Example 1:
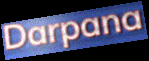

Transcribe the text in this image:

Darpana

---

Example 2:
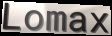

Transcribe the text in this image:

Lomax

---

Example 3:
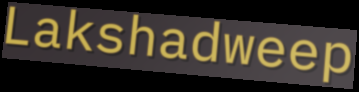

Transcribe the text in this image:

Lakshadweep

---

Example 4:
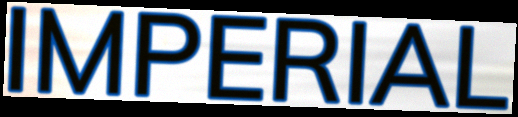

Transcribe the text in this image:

IMPERIAL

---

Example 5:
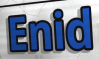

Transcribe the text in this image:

Enid